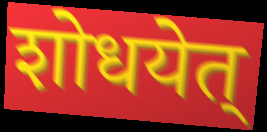
शोधयेत्